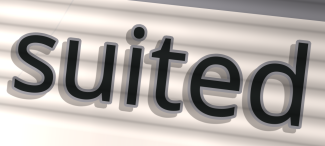
suited